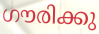
ഗൗരിക്കു